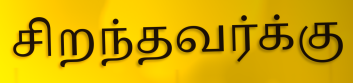
சிறந்தவர்க்கு